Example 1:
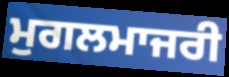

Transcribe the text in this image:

ਮੁਗਲਮਾਜਰੀ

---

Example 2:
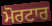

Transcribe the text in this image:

ਮੋਰਟਾਰ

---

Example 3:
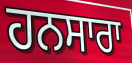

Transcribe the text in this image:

ਹਨਸਾਰਾ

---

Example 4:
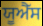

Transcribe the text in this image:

ਯੂਐੱਸ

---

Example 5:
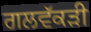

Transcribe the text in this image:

ਗਲਵੱਕਡ਼ੀ